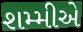
શમ્મીએ